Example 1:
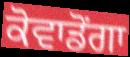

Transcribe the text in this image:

ਕੋਵਾਡੋਂਗਾ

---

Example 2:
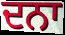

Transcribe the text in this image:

ਦਨਾ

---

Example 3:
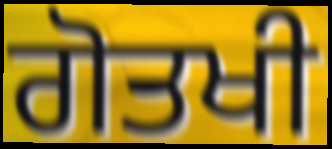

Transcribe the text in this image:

ਗੋਤਖੀ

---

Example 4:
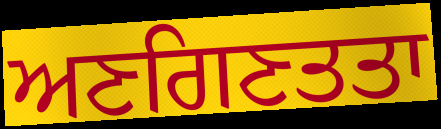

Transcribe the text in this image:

ਅਣਗਿਣਤਤਾ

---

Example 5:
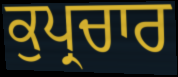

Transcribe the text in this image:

ਕੁਪ੍ਰਚਾਰ